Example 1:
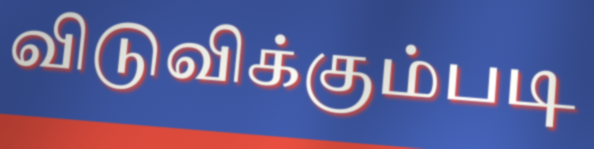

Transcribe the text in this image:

விடுவிக்கும்படி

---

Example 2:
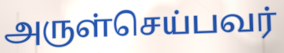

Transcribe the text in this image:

அருள்செய்பவர்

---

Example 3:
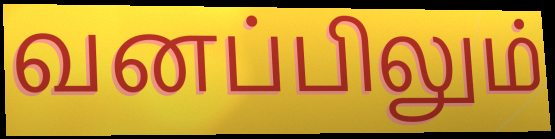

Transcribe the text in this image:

வனப்பிலும்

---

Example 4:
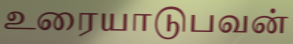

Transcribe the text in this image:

உரையாடுபவன்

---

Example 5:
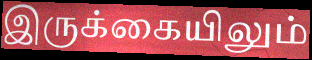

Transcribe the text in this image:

இருக்கையிலும்